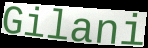
Gilani